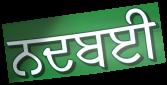
ਨਦਬਈ